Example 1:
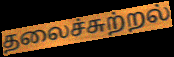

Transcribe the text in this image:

தலைச்சுற்றல்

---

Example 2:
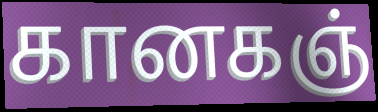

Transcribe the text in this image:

கானகஞ்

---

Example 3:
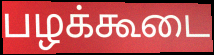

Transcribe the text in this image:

பழக்கூடை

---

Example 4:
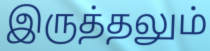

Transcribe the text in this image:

இருத்தலும்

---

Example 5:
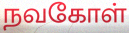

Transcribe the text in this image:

நவகோள்